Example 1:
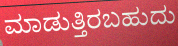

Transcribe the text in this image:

ಮಾಡುತ್ತಿರಬಹುದು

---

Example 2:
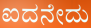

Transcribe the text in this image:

ಐದನೇದು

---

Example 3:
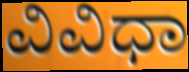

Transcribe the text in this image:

ವಿವಿಧಾ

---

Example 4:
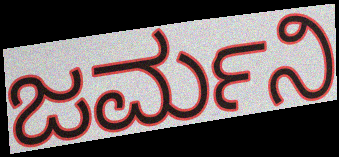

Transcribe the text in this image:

ಜರ್ಮನಿ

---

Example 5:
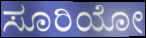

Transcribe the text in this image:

ಸೂರಿಯೋ